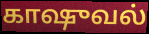
காஷுவல்